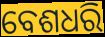
ବେଶଧରି